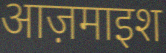
आज़माइश